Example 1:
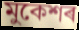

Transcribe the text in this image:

মুকেশৰ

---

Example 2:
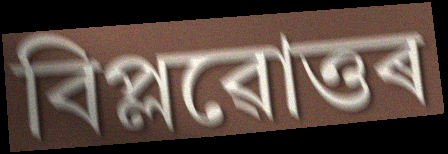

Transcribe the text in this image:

বিপ্লৱোত্তৰ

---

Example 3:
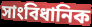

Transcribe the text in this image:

সাংবিধানিক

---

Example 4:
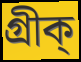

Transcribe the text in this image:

গ্ৰীক্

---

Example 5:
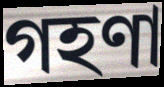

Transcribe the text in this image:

গহণা